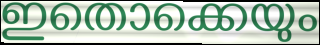
ഇതൊക്കെയും